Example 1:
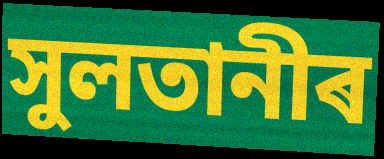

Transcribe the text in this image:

সুলতানীৰ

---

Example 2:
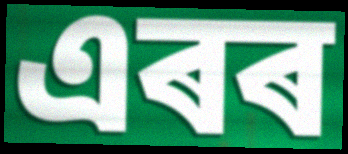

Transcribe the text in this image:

এৰৰ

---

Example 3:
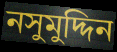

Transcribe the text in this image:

নসুমুদ্দিন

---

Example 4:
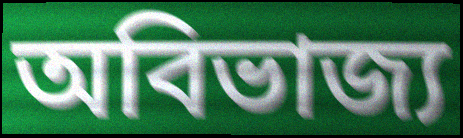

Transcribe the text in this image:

অবিভাজ্য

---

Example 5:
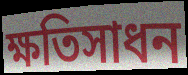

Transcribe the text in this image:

ক্ষতিসাধন